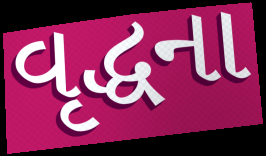
વૃદ્ધના